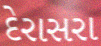
દેરાસરા